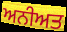
ਅਨੀਅਤ